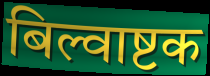
बिल्वाष्टक